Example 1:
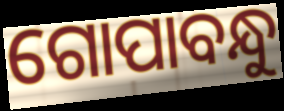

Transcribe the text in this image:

ଗୋପାବନ୍ଧୁ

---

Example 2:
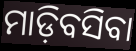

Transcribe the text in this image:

ମାଡ଼ିବସିବା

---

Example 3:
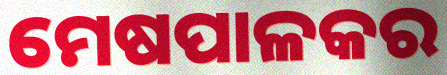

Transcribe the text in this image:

ମେଷପାଳକର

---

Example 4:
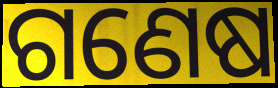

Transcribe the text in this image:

ଗଣେଷ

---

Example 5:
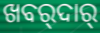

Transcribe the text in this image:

ଖବର୍‍ଦାର୍